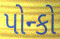
પોન્કો